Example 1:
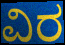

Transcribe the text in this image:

ವಿರ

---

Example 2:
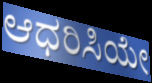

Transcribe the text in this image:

ಆಧರಿಸಿಯೇ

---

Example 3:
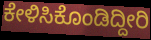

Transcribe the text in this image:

ಕೇಳಿಸಿಕೊಂಡಿದ್ದೀರಿ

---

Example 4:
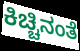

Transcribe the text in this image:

ಕಿಚ್ಚಿನಂತೆ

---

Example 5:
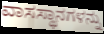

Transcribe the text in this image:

ವಾಸಸ್ಥಾನಗಳನ್ನು